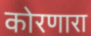
कोरणारा